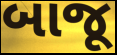
બાજૂ